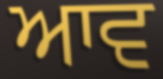
ਆਵ